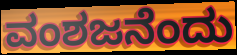
ವಂಶಜನೆಂದು